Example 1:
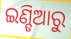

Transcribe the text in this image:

ଇଣ୍ଡିଆରୁ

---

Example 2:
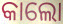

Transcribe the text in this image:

କାଲୋ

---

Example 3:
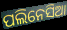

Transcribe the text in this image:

ପଲିନେସିଆ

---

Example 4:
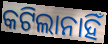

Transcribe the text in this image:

କଟିଲାନାହିଁ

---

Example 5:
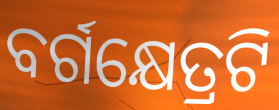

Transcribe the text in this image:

ବର୍ଗକ୍ଷେତ୍ରଟି